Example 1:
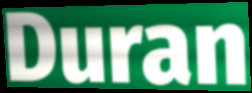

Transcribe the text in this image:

Duran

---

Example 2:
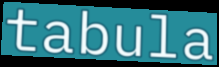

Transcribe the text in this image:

tabula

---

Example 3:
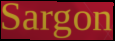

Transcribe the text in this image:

Sargon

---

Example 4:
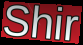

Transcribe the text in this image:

Shir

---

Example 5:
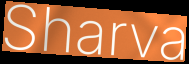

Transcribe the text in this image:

Sharva